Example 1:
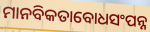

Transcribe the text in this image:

ମାନବିକତାବୋଧସଂପନ୍ନ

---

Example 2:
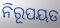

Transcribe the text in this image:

ନିରୂପୟତ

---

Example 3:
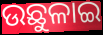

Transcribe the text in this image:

ଉଛୁଳାଇ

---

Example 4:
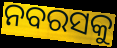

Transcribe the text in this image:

ନବରସକୁ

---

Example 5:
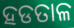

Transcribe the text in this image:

ହଡତାଳ